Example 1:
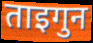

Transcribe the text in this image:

ताइगुन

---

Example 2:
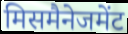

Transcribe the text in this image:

मिसमैनेजमेंट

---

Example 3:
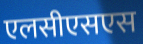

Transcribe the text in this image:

एलसीएसएस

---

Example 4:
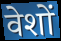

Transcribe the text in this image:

वेशों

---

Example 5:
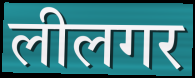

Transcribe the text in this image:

लीलगर